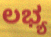
ಲಭ್ಯ